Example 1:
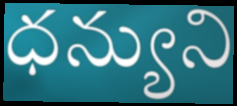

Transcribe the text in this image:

ధన్యుని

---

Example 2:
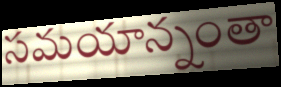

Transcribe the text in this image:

సమయాన్నంతా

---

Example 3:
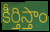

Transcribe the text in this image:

కీర్తిస్తాం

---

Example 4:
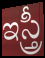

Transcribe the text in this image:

ఇస్త్రీ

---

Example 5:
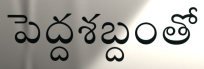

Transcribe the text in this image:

పెద్దశబ్దంతో